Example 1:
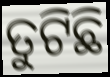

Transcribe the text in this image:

ତୁଟିଛି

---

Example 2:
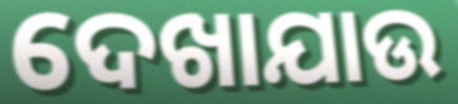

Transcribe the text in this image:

ଦେଖାଯାଉ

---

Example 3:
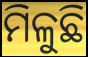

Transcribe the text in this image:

ମିଳୁଛି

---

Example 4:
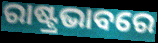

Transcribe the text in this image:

ରାଷ୍ଟ୍ରଭାବରେ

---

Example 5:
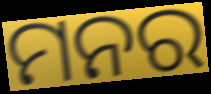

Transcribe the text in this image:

ମନର